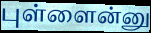
புள்ளைன்னு